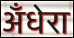
अँधेरा